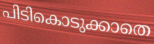
പിടികൊടുക്കാതെ